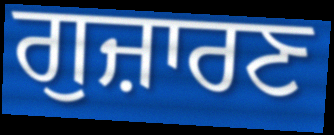
ਗੁਜ਼ਾਰਣ